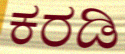
ಕರಡಿ